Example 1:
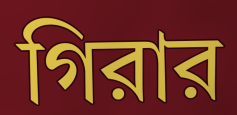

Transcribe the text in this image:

গিরার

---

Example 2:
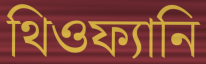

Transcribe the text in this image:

থিওফ্যানি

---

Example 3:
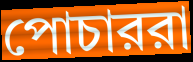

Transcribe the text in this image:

পোচাররা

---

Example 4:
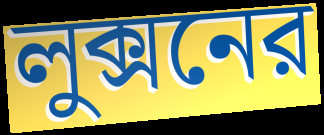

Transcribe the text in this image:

লুক্সনের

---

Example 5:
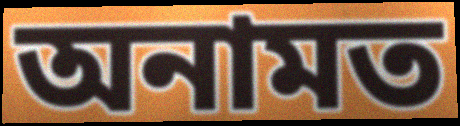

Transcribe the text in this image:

অনামত